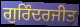
ਗੁਰਿੰਦਰਜੀਤ